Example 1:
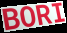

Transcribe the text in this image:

BORI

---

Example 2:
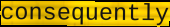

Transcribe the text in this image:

consequently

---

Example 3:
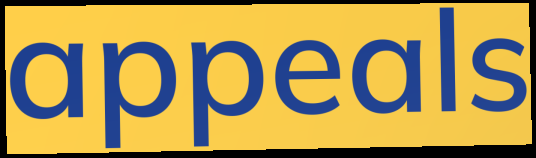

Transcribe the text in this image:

appeals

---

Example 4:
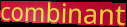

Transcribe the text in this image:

combinant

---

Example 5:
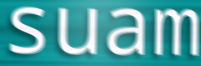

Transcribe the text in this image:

suam